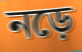
নড়ে